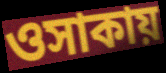
ওসাকায়